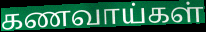
கணவாய்கள்